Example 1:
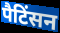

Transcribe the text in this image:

पैटिंसन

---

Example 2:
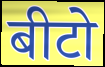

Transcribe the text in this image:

बीटो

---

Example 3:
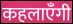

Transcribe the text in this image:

कहलाएँगी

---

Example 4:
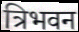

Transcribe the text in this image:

त्रिभवन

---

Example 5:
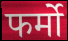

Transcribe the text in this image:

फर्मो